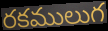
రకములుగ